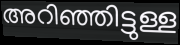
അറിഞ്ഞിട്ടുള്ള